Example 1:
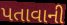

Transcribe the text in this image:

પતાવાની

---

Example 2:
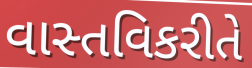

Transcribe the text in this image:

વાસ્તવિકરીતે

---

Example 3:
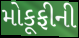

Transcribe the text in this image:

મોકૂફીની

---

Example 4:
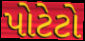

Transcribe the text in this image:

પોટેટો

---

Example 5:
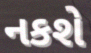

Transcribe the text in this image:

નકશે